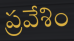
ప్రవేశిం